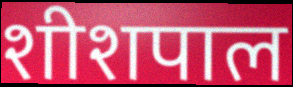
शीशपाल